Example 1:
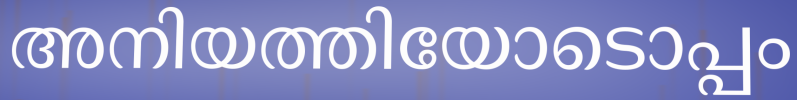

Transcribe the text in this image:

അനിയത്തിയോടൊപ്പം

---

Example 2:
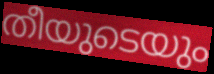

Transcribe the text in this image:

തീയുടെയും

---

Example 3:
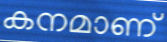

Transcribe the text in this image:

കനമാണ്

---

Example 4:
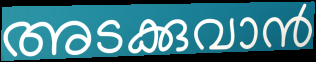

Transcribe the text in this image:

അടക്കുവാൻ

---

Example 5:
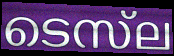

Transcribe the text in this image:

ടെസ്‌ല